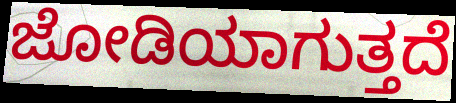
ಜೋಡಿಯಾಗುತ್ತದೆ